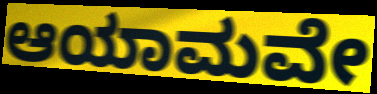
ಆಯಾಮವೇ